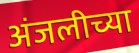
अंजलीच्या